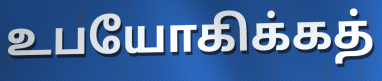
உபயோகிக்கத்